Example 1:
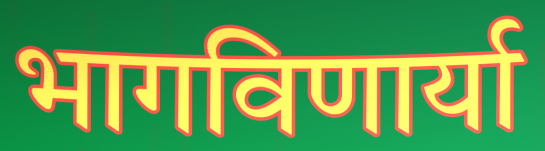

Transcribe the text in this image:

भागविणार्या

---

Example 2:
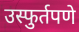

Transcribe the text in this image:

उस्फुर्तपणे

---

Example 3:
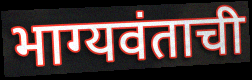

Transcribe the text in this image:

भाग्यवंताची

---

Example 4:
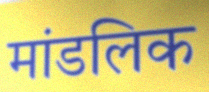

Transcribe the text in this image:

मांडलिक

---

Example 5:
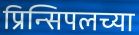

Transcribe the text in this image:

प्रिन्सिपलच्या